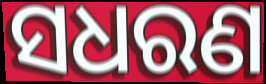
ସଧରଣ